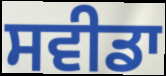
ਸਵੀਡਾ